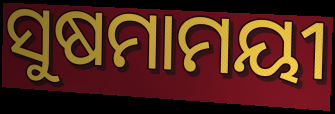
ସୁଷମାମୟୀ